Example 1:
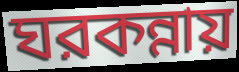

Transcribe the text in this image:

ঘরকন্নায়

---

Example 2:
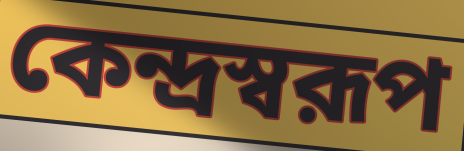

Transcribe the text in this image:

কেন্দ্রস্বরূপ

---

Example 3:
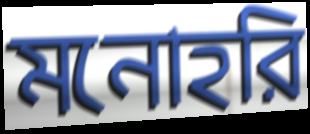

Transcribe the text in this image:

মনোহরি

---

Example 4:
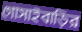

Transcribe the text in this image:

গোসাইবাড়ির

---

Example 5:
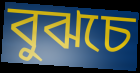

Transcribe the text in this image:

বুঝচে